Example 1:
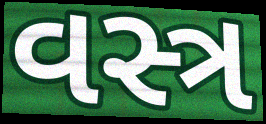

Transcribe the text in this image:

વસ્ત્ર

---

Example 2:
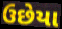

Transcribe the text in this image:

ઉછેયા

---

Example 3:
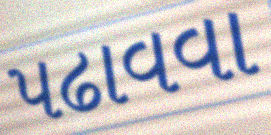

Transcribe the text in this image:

પઢાવવા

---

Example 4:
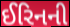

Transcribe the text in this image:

ઈરિનની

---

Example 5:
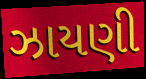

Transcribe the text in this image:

ઝાયણી